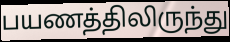
பயணத்திலிருந்து